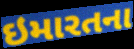
ઇમારતના